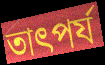
তাৎপর্য